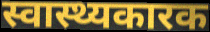
स्वास्थ्यकारक